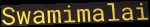
Swamimalai